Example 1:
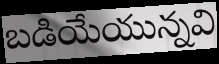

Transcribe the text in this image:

బడియేయున్నవి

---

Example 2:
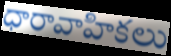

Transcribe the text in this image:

ధారావాహికలు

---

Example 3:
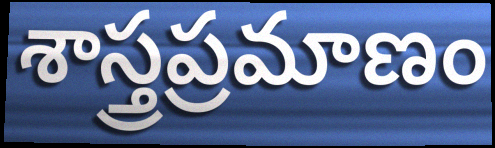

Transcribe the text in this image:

శాస్త్రప్రమాణం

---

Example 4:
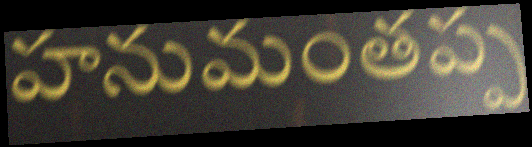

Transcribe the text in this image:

హనుమంతప్ప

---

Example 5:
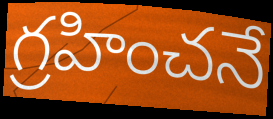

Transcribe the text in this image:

గ్రహించనే